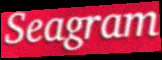
Seagram